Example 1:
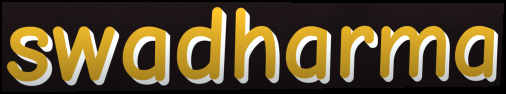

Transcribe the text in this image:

swadharma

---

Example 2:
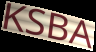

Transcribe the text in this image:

KSBA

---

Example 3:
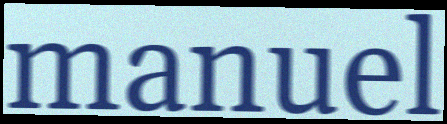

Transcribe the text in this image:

manuel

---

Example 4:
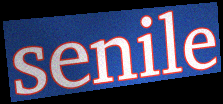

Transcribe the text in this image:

senile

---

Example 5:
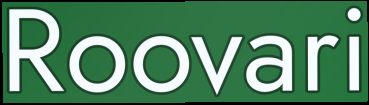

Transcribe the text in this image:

Roovari